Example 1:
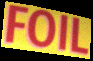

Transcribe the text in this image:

FOIL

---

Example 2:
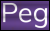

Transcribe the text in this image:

Peg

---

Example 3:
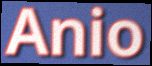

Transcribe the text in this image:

Anio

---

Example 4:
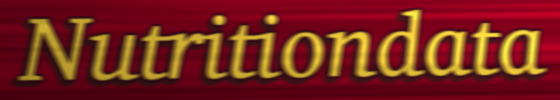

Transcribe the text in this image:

Nutritiondata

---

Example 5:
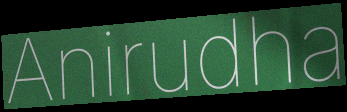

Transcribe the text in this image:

Anirudha